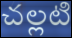
చల్లటి